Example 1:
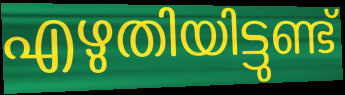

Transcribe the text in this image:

എഴുതിയിട്ടുണ്ട്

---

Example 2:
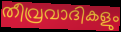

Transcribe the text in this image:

തീവ്രവാദികളും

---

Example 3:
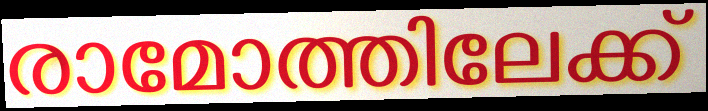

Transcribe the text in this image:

രാമോത്തിലേക്ക്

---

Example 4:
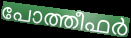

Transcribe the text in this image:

പോത്തീഫർ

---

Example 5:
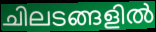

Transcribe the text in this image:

ചിലടങ്ങളിൽ